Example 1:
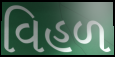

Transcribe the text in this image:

વિહળ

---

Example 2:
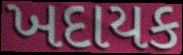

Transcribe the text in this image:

ખદાયક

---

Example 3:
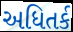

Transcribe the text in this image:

અધિતર્ક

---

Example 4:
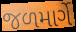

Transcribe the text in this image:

જળમાર્ગે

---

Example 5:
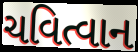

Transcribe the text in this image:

ચવિત્વાન